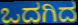
ಒದಗಿದ